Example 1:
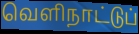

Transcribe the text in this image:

வெளிநாட்டுப்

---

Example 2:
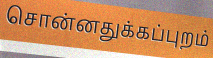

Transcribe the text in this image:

சொன்னதுக்கப்புறம்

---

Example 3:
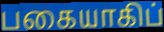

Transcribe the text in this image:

பகையாகிப்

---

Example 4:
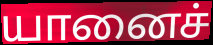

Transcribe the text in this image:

யானைச்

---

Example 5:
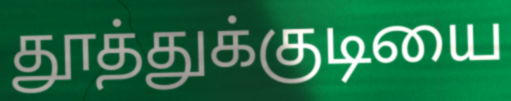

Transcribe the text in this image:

தூத்துக்குடியை